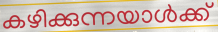
കഴിക്കുന്നയാൾക്ക്